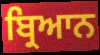
ਬ੍ਰਿਆਨ